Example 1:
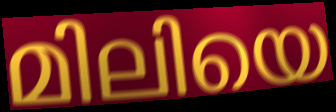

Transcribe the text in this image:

മിലിയെ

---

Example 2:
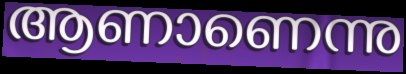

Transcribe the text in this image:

ആണാണെന്നു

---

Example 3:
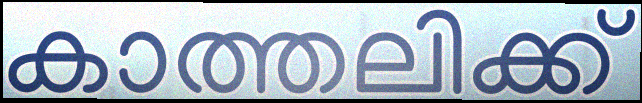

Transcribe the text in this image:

കാത്തലിക്ക്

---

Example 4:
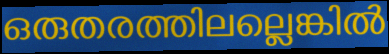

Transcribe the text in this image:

ഒരുതരത്തിലല്ലെങ്കിൽ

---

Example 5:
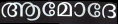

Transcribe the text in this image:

ആമോദേ